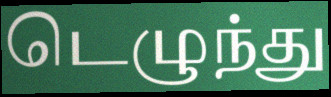
டெழுந்து